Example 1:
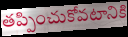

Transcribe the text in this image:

తప్పించుకోవటానికి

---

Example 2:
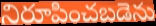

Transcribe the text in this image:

నిరూపించబడెను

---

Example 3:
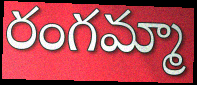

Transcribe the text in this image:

రంగమ్మా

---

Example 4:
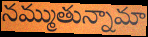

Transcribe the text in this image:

నమ్ముతున్నామా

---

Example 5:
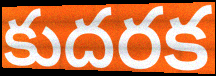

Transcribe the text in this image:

కుదరక